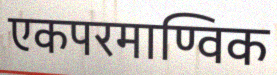
एकपरमाण्विक